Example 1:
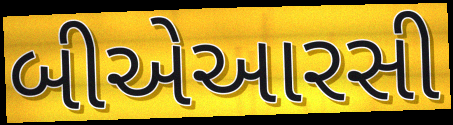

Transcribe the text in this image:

બીએઆરસી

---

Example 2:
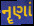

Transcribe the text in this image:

નૄણાં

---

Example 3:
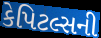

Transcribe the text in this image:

કેપિટલ્સની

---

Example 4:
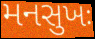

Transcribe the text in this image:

મનસુખઃ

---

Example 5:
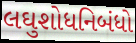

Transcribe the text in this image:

લઘુશોધનિબંધો